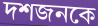
দশজনকে